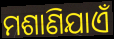
ମଶାଣିଯାଏଁ